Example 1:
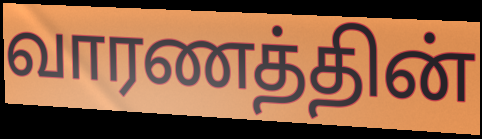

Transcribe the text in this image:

வாரணத்தின்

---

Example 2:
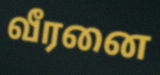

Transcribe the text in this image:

வீரனை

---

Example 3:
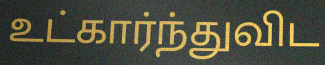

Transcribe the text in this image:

உட்கார்ந்துவிட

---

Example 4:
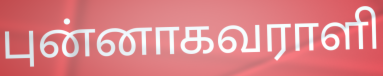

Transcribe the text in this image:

புன்னாகவராளி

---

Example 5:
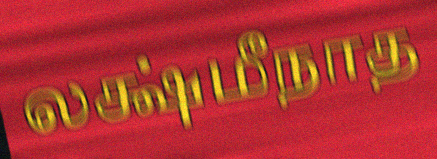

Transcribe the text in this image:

லக்ஷ்மீநாத